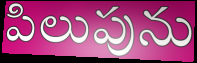
పిలుపును